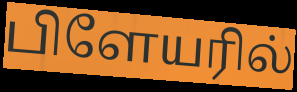
பிளேயரில்